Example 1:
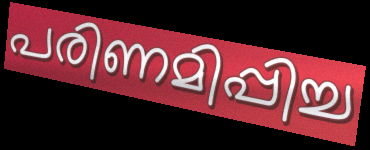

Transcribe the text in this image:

പരിണമിപ്പിച്ച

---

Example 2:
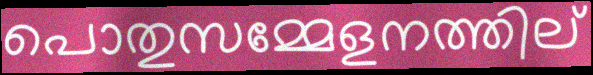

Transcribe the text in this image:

പൊതുസമ്മേളനത്തില്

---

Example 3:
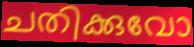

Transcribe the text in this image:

ചതിക്കുവോ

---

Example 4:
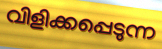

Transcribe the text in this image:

വിളിക്കപ്പെടുന്ന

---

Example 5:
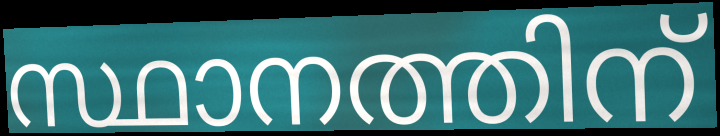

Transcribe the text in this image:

സ്ഥാനത്തിന്